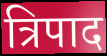
त्रिपाद